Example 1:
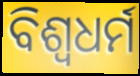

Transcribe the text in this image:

ବିଶ୍ବଧର୍ମ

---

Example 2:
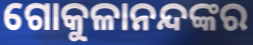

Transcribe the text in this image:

ଗୋକୁଳାନନ୍ଦଙ୍କର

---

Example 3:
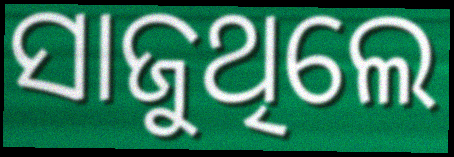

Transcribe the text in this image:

ସାଜୁଥିଲେ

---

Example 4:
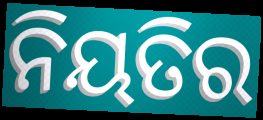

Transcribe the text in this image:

ନିୟତିର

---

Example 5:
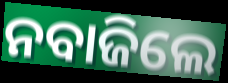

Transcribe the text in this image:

ନବାଜିଲେ